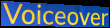
Voiceover